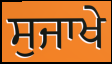
ਸੁਜਾਖੇ